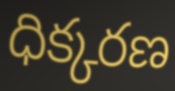
ధిక్కరణ